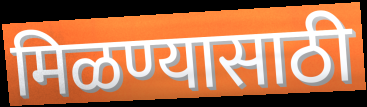
मिळण्‍यासाठी